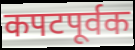
कपटपूर्वक